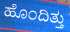
ಹೊಂದಿತ್ತು